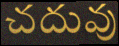
చదువు